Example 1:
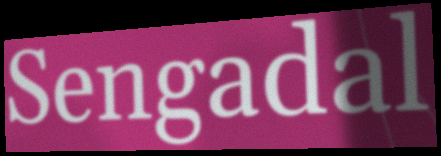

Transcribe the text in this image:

Sengadal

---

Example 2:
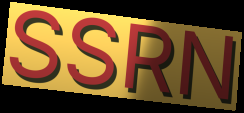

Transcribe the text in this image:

SSRN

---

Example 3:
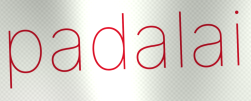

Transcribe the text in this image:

padalai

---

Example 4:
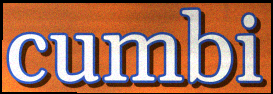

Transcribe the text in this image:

cumbi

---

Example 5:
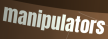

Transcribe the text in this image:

manipulators